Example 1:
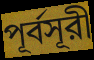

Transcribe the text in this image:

পূর্বসূরী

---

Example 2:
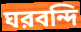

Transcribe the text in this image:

ঘরবন্দি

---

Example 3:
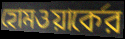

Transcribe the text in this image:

হোমওয়ার্কের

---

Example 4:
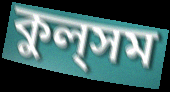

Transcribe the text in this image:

কুল্‌সম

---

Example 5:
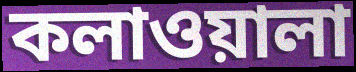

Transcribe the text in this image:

কলাওয়ালা